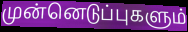
முன்னெடுப்புகளும்